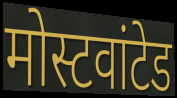
मोस्टवांटेड